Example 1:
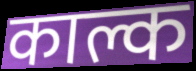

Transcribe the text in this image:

काल्क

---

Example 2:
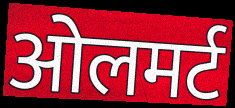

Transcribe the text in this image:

ओलमर्ट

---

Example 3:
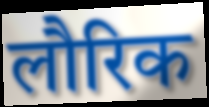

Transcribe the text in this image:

लौरिक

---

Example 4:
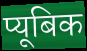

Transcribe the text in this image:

प्यूबिक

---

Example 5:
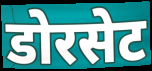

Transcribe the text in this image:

डोरसेट